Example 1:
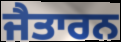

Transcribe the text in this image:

ਜੈਤਾਰਨ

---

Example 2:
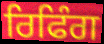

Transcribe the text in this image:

ਰਿਫਿੰਗ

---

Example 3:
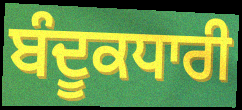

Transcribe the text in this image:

ਬੰਦੂਕਧਾਰੀ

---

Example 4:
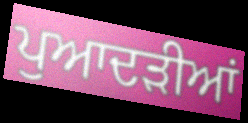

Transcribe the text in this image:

ਪੁਆਦੜੀਆਂ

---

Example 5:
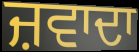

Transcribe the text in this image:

ਜ਼ਵਾਦਾ